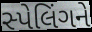
સ્પેલિંગને